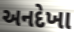
અનદેખા